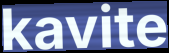
kavite